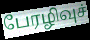
பேரழிவுச்